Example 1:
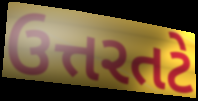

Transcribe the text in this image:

ઉત્તરતટે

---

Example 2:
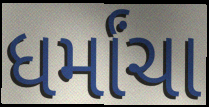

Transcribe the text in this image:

ધર્માંચા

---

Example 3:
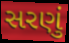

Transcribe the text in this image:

સરણું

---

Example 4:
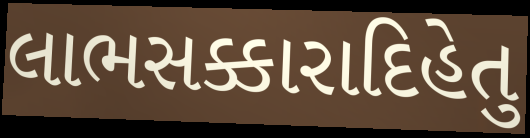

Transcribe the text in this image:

લાભસક્કારાદિહેતુ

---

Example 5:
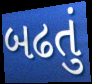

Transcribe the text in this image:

બઢતું